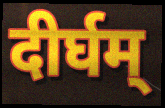
दीर्घम्